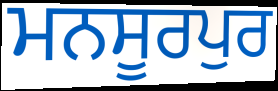
ਮਨਸੂਰਪੁਰ